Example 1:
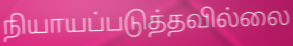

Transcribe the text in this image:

நியாயப்படுத்தவில்லை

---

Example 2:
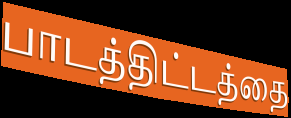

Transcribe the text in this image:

பாடத்திட்டத்தை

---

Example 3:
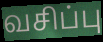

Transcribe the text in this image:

வசிப்பு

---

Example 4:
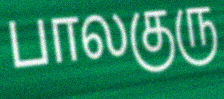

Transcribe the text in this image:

பாலகுரு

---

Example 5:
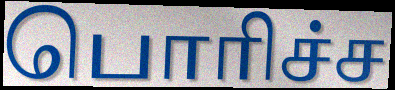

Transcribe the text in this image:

பொரிச்ச